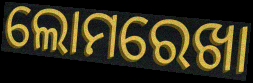
ଲୋମରେଖା